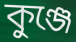
কুঞ্জে